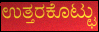
ಉತ್ತರಕೊಟ್ಟು